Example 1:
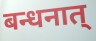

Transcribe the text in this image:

बन्धनात्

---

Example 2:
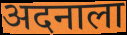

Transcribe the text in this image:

अदनाला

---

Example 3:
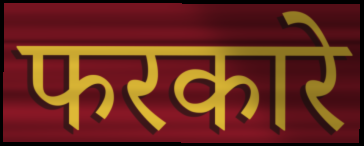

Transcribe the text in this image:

फरकारे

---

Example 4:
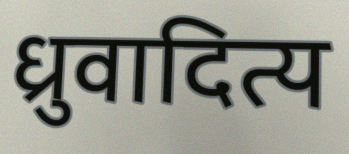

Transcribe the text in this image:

ध्रुवादित्य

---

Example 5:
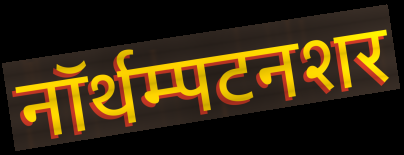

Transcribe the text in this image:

नॉर्थम्पटनशर